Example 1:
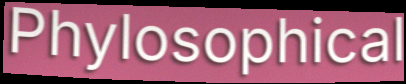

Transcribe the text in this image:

Phylosophical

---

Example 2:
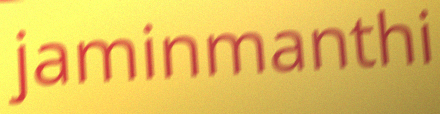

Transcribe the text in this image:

jaminmanthi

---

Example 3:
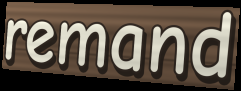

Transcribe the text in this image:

remand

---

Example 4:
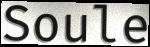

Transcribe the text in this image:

Soule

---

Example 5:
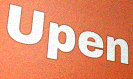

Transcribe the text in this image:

Upen